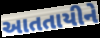
આતતાયીને